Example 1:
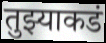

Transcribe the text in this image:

तुझ्याकडं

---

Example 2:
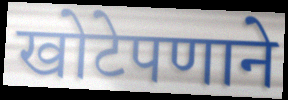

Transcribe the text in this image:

खोटेपणाने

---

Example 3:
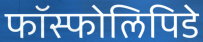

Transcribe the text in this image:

फॉस्फोलिपिडे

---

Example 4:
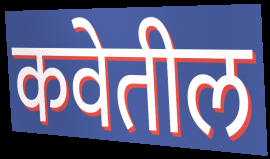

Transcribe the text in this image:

कवेतील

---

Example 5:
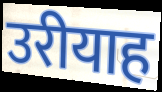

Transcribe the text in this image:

उरीयाह